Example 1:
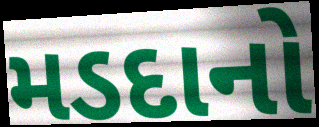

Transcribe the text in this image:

મડદાનો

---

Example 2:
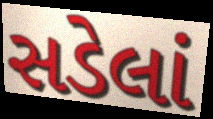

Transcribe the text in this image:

સડેલાં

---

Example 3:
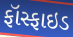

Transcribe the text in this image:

ફૉસ્ફાઇડ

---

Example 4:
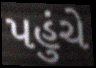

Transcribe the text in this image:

પહુંચે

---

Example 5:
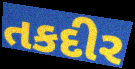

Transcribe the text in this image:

તકદીર